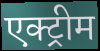
एक्ट्रीम